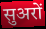
सुअरों